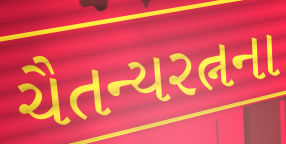
ચૈતન્યરત્નના